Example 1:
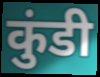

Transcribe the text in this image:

कुंडी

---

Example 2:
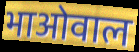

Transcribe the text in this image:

भाओवाल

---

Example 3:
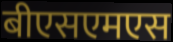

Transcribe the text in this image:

बीएसएमएस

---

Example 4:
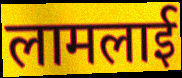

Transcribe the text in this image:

लामलाई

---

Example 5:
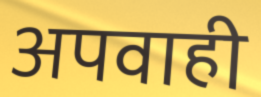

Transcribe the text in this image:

अपवाही